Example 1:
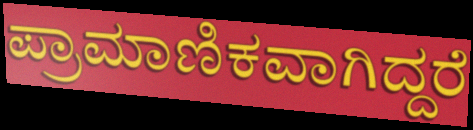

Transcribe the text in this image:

ಪ್ರಾಮಾಣಿಕವಾಗಿದ್ದರೆ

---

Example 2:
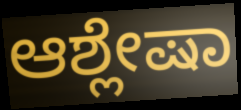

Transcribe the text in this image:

ಆಶ್ಲೇಷಾ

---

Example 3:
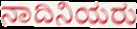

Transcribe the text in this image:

ನಾದಿನಿಯರು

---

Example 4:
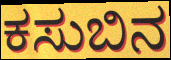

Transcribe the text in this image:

ಕಸುಬಿನ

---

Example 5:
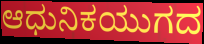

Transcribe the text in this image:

ಆಧುನಿಕಯುಗದ